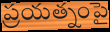
ప్రయత్నంపై